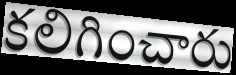
కలిగించారు